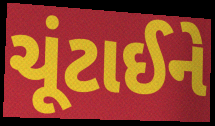
ચૂંટાઈને